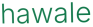
hawale